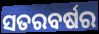
ସତରବର୍ଷର